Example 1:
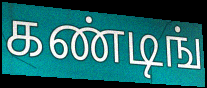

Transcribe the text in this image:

கண்டிங்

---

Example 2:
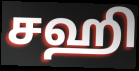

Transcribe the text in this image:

சஹி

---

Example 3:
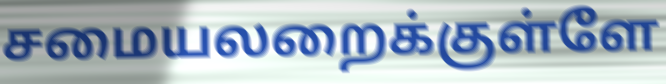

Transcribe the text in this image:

சமையலறைக்குள்ளே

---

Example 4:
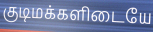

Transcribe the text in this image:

குடிமக்களிடையே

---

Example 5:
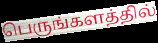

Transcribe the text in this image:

பெருங்களத்தில்